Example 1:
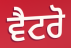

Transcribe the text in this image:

ਵੈਟਰੋ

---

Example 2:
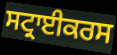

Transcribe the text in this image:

ਸਟ੍ਰਾਈਕਰਸ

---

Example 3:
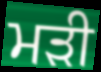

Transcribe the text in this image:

ਮੜੀ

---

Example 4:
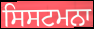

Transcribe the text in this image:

ਸਿਸਟਮਨਾ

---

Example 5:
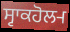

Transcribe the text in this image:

ਸ੍ਟਾਕਹੋਲ੍ਮ